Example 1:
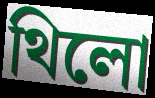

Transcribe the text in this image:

থিলো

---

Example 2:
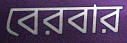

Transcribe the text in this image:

বেরবার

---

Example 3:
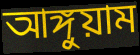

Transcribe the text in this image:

আঙ্গুয়াম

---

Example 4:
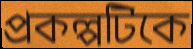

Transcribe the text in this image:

প্রকল্পটিকে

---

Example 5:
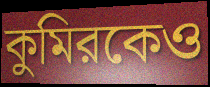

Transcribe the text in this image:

কুমিরকেও